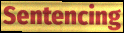
Sentencing